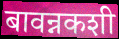
बावन्नकशी